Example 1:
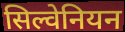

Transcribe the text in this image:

सिल्वेनियन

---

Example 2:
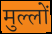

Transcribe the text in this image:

मुल्लों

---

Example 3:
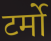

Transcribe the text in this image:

टर्मो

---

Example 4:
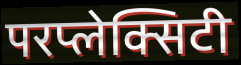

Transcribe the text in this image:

परप्लेक्सिटी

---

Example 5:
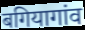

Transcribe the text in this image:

बगियागांव